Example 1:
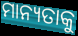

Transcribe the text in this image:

ମାନ୍ୟତାକୁ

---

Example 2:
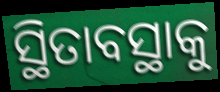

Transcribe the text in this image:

ସ୍ଥିତାବସ୍ଥାକୁ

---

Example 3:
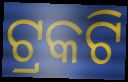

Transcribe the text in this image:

ଟ୍ରକଟି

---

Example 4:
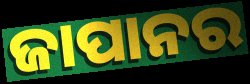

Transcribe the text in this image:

ଜାପାନର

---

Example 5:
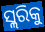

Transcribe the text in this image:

ସ୍ଲରିକୁ